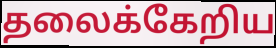
தலைக்கேறிய